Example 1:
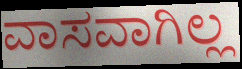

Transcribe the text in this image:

ವಾಸವಾಗಿಲ್ಲ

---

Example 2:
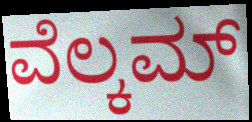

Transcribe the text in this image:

ವೆಲ್ಕಮ್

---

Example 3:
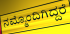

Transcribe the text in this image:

ನಮ್ಮೊಂದಿಗಿದ್ದರೆ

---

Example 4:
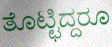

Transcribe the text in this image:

ತೊಟ್ಟಿದ್ದರೂ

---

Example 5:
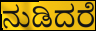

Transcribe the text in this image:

ನುಡಿದರೆ